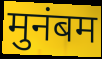
मुनंबम